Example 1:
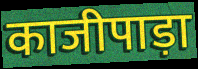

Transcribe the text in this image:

काजीपाड़ा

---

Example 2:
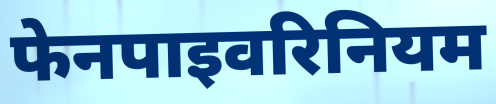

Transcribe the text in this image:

फेनपाइवरिनियम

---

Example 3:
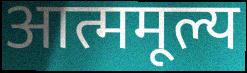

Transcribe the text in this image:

आत्ममूल्य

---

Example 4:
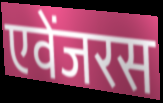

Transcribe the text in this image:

एवेंजरस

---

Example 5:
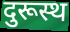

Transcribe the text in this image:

दुरूस्थ